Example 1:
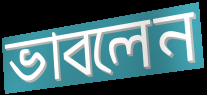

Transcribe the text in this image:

ভাবলেন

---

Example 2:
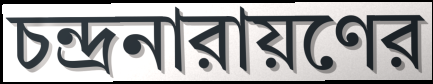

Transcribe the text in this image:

চন্দ্রনারায়ণের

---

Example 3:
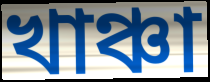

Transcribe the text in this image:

খাঞ্চা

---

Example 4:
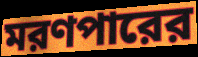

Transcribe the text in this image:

মরণপারের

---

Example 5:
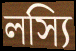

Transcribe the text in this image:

লস্যি